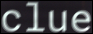
clue